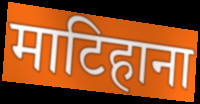
माटिहाना